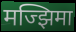
मज्झिमा